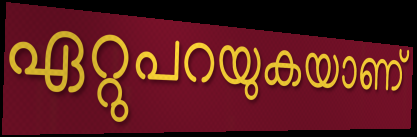
ഏറ്റുപറയുകയാണ്